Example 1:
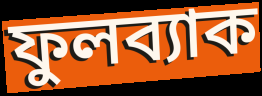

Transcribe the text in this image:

ফুলব্যাক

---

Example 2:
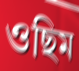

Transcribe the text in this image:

ওছিম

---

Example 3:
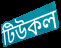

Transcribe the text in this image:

টিউকল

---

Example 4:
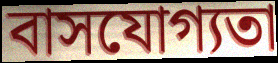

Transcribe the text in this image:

বাসযোগ্যতা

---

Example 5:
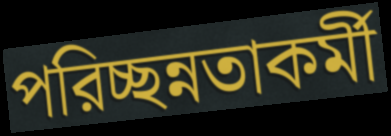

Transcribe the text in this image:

পরিচ্ছন্নতাকর্মী